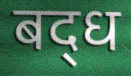
बद्ध